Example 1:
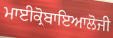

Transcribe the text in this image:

ਮਾਈਕ੍ਰੋਬਾਇਆਲੋਜੀ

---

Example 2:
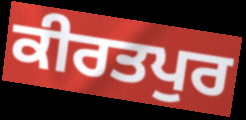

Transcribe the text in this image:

ਕੀਰਤਪੁਰ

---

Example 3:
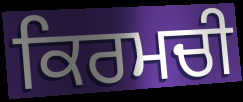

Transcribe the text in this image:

ਕਿਰਮਚੀ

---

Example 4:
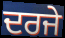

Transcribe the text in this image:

ਦਰਜੇ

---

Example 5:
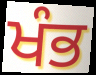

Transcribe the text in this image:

ਖੰਭ